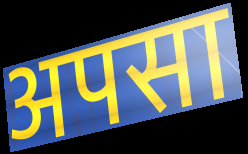
अपसा